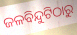
ଜଳବିନ୍ଦୁଟିଠାରୁ